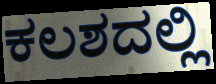
ಕಲಶದಲ್ಲಿ